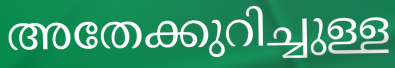
അതേക്കുറിച്ചുള്ള